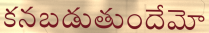
కనబడుతుందేమో